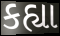
કહ્યા